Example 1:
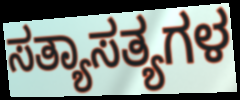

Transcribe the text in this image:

ಸತ್ಯಾಸತ್ಯಗಳ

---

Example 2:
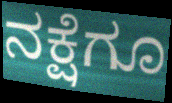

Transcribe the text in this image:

ನಕ್ಷೆಗೂ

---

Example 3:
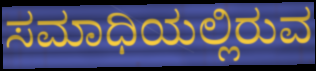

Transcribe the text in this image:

ಸಮಾಧಿಯಲ್ಲಿರುವ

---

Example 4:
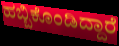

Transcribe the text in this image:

ಹಬ್ಬಿಕೊಂಡಿದ್ದಾರೆ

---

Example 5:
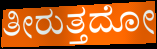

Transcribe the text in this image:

ತೀರುತ್ತದೋ